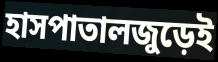
হাসপাতালজুড়েই